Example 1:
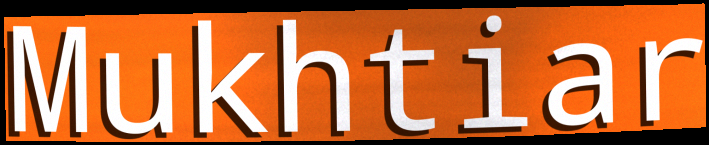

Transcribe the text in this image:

Mukhtiar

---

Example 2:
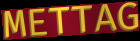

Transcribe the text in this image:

METTAG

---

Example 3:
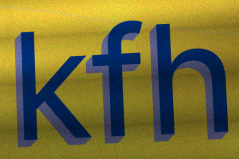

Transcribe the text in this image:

kfh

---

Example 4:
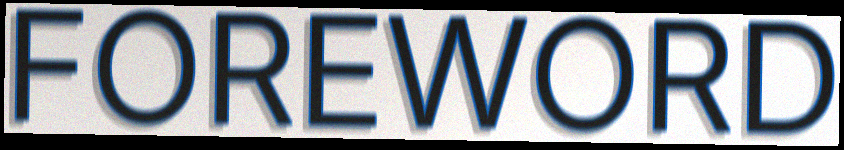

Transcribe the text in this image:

FOREWORD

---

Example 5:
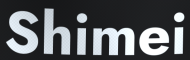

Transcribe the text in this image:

Shimei